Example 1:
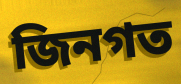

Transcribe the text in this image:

জিনগত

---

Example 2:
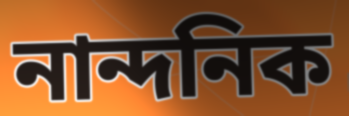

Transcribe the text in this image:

নান্দনিক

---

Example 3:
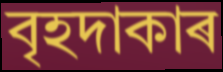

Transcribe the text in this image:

বৃহদাকাৰ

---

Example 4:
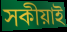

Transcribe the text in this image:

সকীয়াই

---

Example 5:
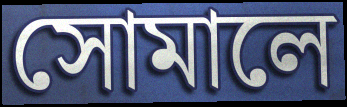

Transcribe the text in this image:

সোমালে